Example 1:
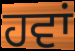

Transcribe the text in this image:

ਹਵਾਂ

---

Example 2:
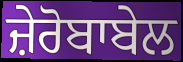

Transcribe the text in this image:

ਜ਼ੇਰੋਬਾਬੇਲ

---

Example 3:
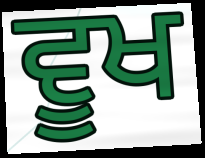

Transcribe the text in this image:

ਵੂਖ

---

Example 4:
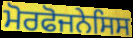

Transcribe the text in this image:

ਮੋਰਫੋਜਨੇਸਿਸ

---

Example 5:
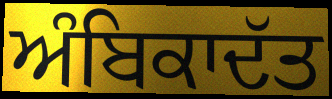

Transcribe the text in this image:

ਅੰਬਿਕਾਦੱਤ